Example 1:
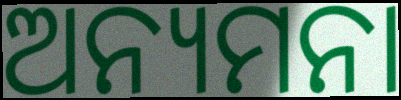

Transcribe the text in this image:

ଅନ୍ୟମନା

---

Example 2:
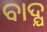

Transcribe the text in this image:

ବାଦ୍ଯ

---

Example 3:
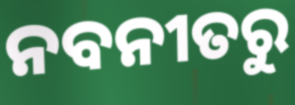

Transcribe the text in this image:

ନବନୀତରୁ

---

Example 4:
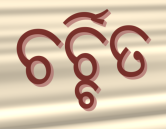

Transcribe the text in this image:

ଚର୍ଚ୍ଚିତ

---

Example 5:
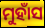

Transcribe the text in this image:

ମୁହାଁସ